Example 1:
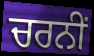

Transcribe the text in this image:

ਚਰਨੀਂ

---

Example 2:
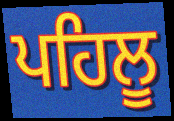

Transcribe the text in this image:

ਪਹਿਲੂ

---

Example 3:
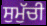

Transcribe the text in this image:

ਸੁਮੁੱਚੀ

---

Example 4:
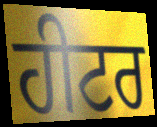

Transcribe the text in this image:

ਹੀਟਰ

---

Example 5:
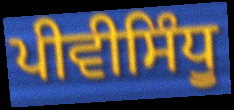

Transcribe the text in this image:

ਪੀਵੀਸਿੰਧੂ